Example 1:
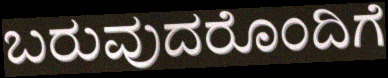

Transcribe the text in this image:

ಬರುವುದರೊಂದಿಗೆ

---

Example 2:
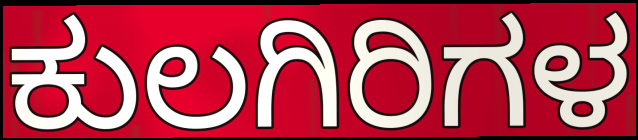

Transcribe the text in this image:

ಕುಲಗಿರಿಗಳ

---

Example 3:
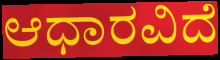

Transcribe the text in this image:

ಆಧಾರವಿದೆ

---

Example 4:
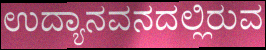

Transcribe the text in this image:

ಉದ್ಯಾನವನದಲ್ಲಿರುವ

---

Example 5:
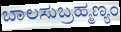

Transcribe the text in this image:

ಬಾಲಸುಬ್ರಹ್ಮಣ್ಯಂ